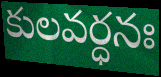
కులవర్ధనః